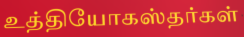
உத்தியோகஸ்தர்கள்